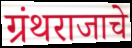
ग्रंथराजाचे